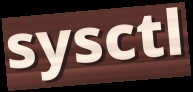
sysctl